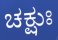
ಚಕ್ಷುಃ